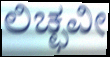
ಲಿಚ್ಛವೀ